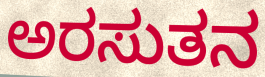
ಅರಸುತನ